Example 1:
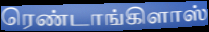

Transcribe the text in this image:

ரெண்டாங்கிளாஸ்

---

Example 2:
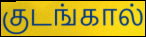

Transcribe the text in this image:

குடங்கால்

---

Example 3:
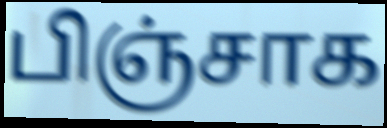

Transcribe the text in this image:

பிஞ்சாக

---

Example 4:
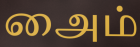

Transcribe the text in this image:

அைம்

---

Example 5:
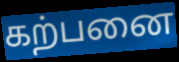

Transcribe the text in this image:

கற்பனை